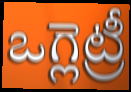
ఒగ్లెట్రీ